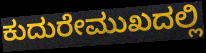
ಕುದುರೇಮುಖದಲ್ಲಿ